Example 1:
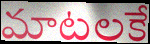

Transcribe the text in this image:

మాటలకే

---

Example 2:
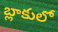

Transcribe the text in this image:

బ్లాకులో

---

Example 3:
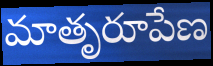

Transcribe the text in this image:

మాతృరూపేణ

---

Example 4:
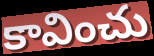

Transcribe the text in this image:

కావించు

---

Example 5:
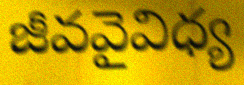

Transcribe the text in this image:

జీవవైవిధ్య